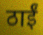
ठाईं